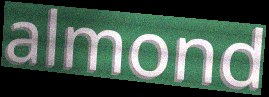
almond